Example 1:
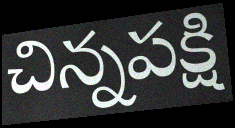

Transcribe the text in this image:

చిన్నపక్షి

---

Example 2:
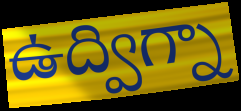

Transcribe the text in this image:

ఉద్విగ్నా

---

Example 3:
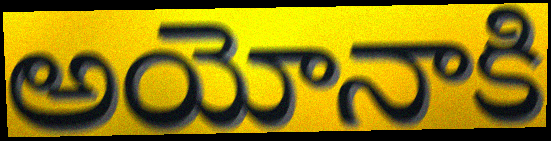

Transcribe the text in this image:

అయోనాకి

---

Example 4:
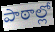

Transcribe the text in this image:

పాఠాల్లో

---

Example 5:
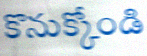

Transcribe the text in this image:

కొనుక్కోండి